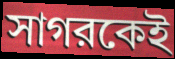
সাগরকেই